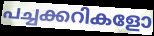
പച്ചക്കറികളോ